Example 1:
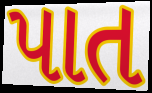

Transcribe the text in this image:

પાત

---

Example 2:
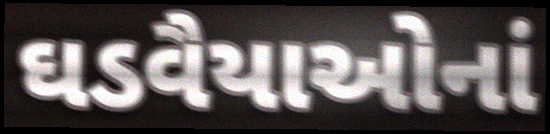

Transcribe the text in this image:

ઘડવૈયાઓનાં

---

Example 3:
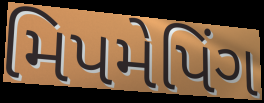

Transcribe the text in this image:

મિપમેપિંગ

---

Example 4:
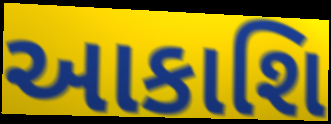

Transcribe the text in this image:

આકાશિ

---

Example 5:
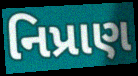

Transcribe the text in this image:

નિપ્રાણ